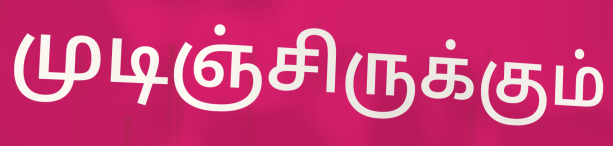
முடிஞ்சிருக்கும்